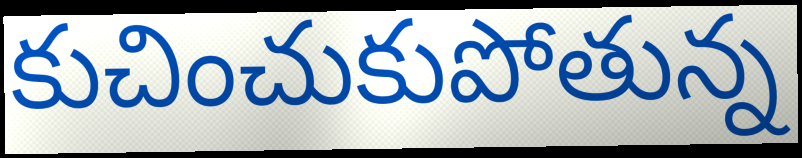
కుచించుకుపోతున్న